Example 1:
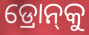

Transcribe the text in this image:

ଡ୍ରୋନ୍‌କୁ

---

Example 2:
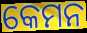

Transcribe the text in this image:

କେମନ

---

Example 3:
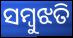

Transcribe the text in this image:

ସମ୍ବୁଝତି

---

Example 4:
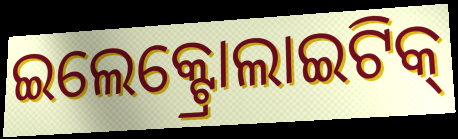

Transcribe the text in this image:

ଇଲେକ୍ଟ୍ରୋଲାଇଟିକ୍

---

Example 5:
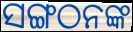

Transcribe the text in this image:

ସଙ୍ଗଠନଙ୍କ